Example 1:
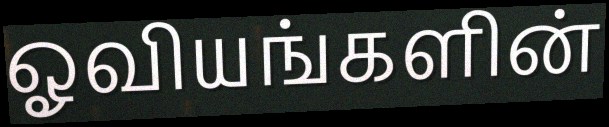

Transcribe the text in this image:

ஓவியங்களின்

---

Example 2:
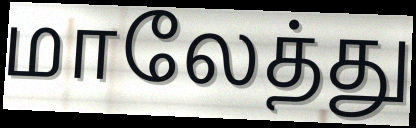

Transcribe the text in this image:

மாலேத்து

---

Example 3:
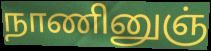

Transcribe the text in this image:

நாணினுஞ்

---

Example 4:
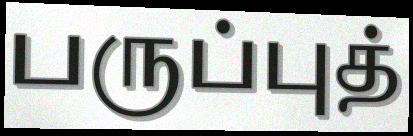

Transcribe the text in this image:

பருப்புத்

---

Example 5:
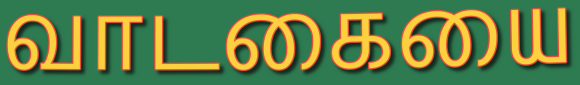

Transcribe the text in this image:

வாடகையை